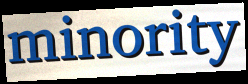
minority